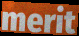
merit